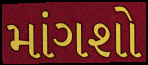
માંગશો